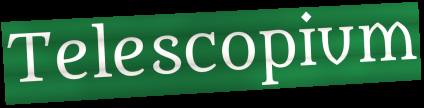
Telescopium